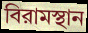
বিরামস্থান